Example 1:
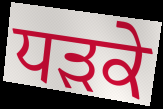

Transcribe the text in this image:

ਧੜਕੇ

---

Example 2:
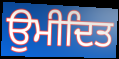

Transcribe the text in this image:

ਉਮੀਦਿਤ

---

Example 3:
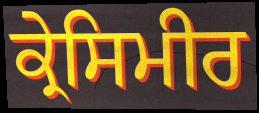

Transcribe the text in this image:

ਕ੍ਰੇਸਿਮੀਰ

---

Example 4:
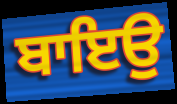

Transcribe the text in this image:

ਬਾਇਉ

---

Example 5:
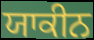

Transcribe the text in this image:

ਯਾਕੀਨ